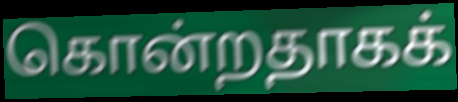
கொன்றதாகக்